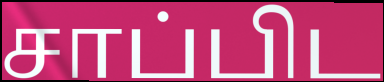
சாப்பிட